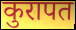
कुरापत